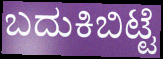
ಬದುಕಿಬಿಟ್ಟೆ